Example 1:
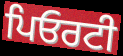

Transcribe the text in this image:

ਪਿਓਰਟੀ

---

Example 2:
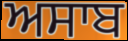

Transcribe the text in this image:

ਅਸਾਬ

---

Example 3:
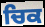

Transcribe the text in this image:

ਚਿਕ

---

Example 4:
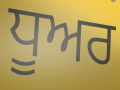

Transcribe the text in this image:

ਧੂਅਰ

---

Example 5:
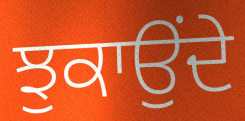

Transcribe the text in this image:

ਝੁਕਾਉਂਦੇ